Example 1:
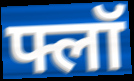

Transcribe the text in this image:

फ्लॉ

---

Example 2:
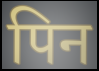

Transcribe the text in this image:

पिन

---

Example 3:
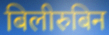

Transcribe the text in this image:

बिलीरुबिन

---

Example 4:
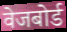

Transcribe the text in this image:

वेजबोर्ड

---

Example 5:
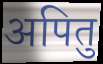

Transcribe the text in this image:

अपितु